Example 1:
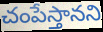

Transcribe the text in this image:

చంపేస్తానని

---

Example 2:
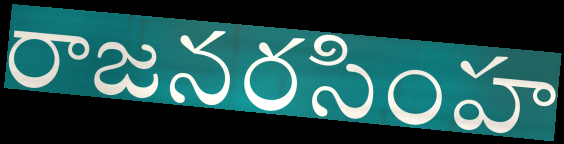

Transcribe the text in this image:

రాజనరసింహ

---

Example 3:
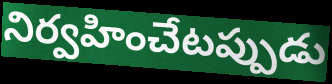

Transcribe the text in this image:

నిర్వహించేటప్పుడు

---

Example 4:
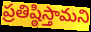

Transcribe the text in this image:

ప్రతిష్ఠిస్తామని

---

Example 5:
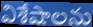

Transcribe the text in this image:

విశేషాలను